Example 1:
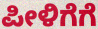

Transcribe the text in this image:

ಪೀಳಿಗೆಗೆ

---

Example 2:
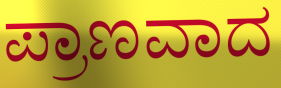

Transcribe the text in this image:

ಪ್ರಾಣವಾದ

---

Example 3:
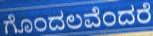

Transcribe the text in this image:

ಗೊಂದಲವೆಂದರೆ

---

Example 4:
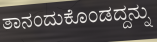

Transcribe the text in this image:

ತಾನಂದುಕೊಂಡದ್ದನ್ನು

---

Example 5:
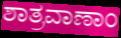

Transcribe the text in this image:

ಶಾತ್ರವಾಣಾಂ